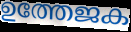
ഉത്തേജക